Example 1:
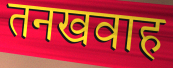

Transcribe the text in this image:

तनखवाह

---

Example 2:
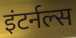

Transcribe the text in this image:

इंटर्नल्स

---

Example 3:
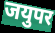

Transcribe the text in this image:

जयुपर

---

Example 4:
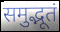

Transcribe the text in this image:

समुद्भूतं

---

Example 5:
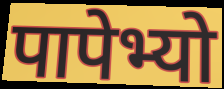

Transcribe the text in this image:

पापेभ्यो